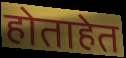
होताहेत